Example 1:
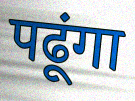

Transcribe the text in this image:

पढूंगा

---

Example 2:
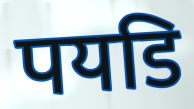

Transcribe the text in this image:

पयडि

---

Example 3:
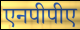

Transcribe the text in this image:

एनपीपीए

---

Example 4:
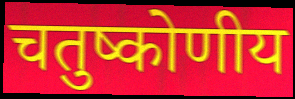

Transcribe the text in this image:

चतुष्कोणीय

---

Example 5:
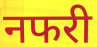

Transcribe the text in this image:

नफरी